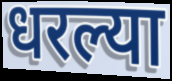
धरल्या